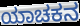
ಯಾಚಕನ